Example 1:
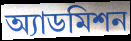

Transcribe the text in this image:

অ্যাডমিশন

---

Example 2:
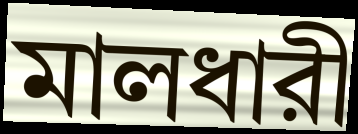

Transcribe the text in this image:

মালধারী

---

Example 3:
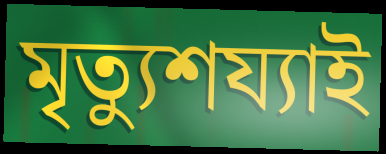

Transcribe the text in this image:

মৃত্যুশয্যাই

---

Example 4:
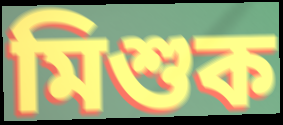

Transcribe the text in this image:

মিশুক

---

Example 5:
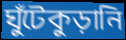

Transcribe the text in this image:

ঘুঁটেকুড়ানি